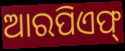
ଆରପିଏଫ୍